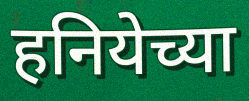
हनियेच्या